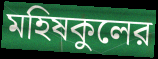
মহিষকুলের